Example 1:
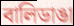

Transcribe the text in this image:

বালিডাঙা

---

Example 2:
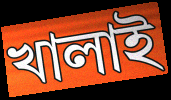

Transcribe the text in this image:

খালাই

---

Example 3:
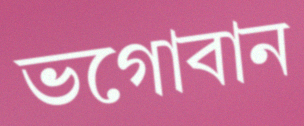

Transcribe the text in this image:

ভগোবান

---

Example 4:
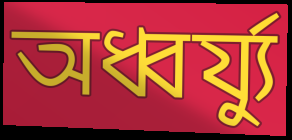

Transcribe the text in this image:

অধ্বর্য্যু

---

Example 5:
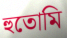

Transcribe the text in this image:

হুতোমি